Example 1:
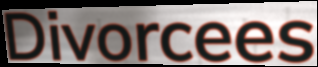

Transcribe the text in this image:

Divorcees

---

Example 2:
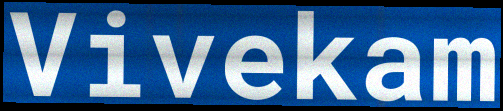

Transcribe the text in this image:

Vivekam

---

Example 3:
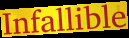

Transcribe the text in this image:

Infallible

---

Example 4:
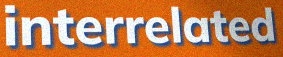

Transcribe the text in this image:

interrelated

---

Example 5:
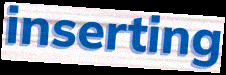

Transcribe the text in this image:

inserting